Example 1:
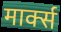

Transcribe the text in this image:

मार्क्स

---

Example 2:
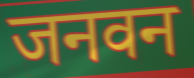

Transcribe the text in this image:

जनवन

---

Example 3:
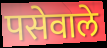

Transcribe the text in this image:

पसेवाले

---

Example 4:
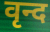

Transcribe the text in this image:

वृन्द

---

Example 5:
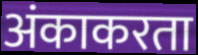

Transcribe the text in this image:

अंकाकरता